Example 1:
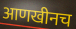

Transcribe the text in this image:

आणखीनच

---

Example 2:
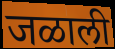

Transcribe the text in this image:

जळाली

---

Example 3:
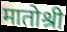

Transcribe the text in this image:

मातोश्री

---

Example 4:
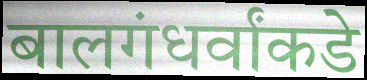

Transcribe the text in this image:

बालगंधर्वांकडे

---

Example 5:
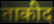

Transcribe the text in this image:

ताकीद